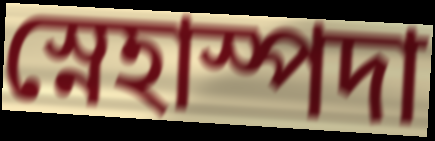
স্নেহাস্পদা